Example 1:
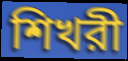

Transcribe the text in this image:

শিখরী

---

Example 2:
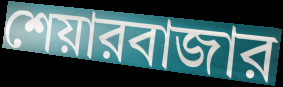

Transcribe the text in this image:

শেয়ারবাজার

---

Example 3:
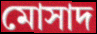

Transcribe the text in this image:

মোসাদ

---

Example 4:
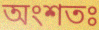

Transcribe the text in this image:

অংশতঃ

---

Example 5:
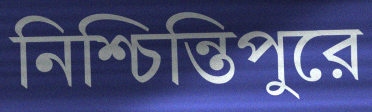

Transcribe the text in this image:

নিশ্চিন্তিপুরে